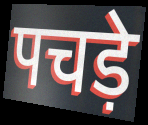
पचड़े